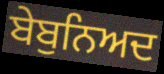
ਬੇਬੁਨਿਅਦ